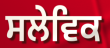
ਸਲੇਵਿਕ